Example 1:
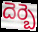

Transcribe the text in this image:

దెర్బె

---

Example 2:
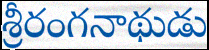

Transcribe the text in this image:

శ్రీరంగనాథుడు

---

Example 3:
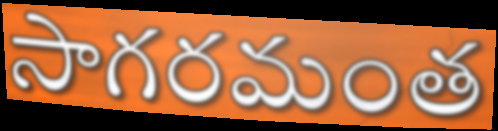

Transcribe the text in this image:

సాగరమంత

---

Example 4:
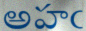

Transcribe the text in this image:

అహఁ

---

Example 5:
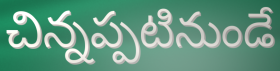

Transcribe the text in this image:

చిన్నప్పటినుండే